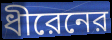
ধীরেনের